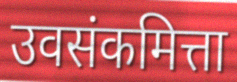
उवसंकमित्ता